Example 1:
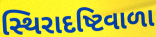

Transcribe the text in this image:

સ્થિરાદષ્ટિવાળા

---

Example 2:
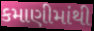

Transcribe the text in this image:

કમાણીમાંથી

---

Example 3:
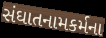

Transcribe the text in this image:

સંઘાતનામકર્મના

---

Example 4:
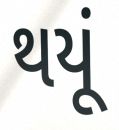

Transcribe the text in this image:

થયૂં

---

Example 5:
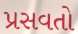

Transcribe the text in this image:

પ્રસવતો